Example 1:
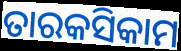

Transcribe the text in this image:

ତାରକସିକାମ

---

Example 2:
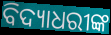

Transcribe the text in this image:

ବିଦ୍ୟାଧରୀଙ୍କ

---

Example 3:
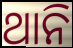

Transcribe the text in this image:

ଥାନି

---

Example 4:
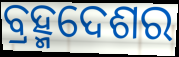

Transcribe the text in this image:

ବ୍ରହ୍ମଦେଶର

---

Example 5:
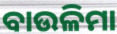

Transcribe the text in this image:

ବାଉଳିମା